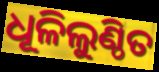
ଧୂଳିଲୁଣ୍ଠିତ